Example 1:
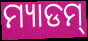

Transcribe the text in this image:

ମ୍ୟାଡମ୍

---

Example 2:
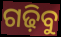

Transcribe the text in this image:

ଗଢ଼ିବୁ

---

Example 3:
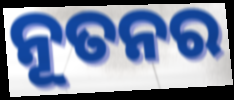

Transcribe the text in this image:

ନୂତନର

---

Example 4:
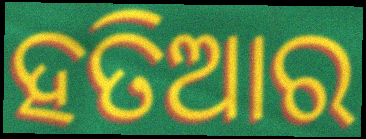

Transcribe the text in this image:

ହତିଆର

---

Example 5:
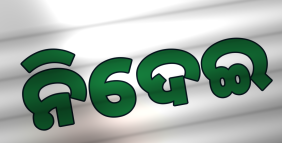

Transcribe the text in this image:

ନିଦେଇ